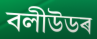
বলীউডৰ